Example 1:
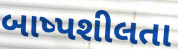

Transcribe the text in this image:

બાષ્પશીલતા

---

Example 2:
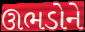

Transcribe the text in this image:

ઊભડોને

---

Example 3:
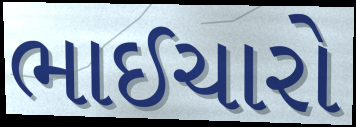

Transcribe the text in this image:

ભાઈચારો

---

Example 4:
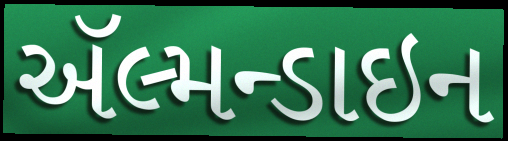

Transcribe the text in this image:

ઍલ્મન્ડાઇન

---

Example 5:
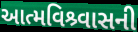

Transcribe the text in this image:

આત્મવિશ્ર્વાસની